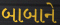
બાબાને